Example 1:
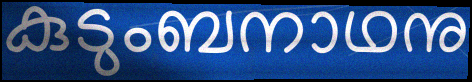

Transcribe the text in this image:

കുടുംബനാഥനു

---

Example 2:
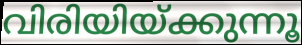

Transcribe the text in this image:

വിരിയിയ്ക്കുന്നൂ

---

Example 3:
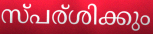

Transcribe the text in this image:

സ്പര്ശിക്കും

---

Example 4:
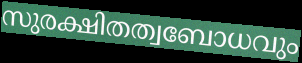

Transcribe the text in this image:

സുരക്ഷിതത്വബോധവും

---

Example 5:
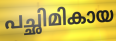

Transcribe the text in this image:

പച്ഛിമികായ